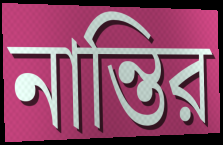
নান্তির